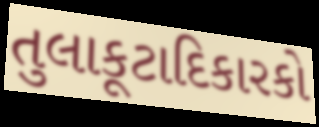
તુલાકૂટાદિકારકો